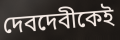
দেবদেবীকেই